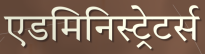
एडमिनिस्ट्रेटर्स